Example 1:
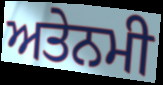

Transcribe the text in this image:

ਅਤੇਨਮੀ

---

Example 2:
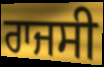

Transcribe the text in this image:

ਰਾਜਸੀ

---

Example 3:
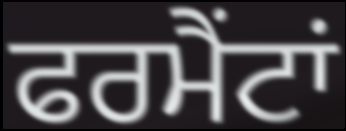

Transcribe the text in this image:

ਫਰਮੈਂਟਾਂ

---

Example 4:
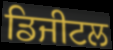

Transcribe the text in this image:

ਡਿਜੀਟਲ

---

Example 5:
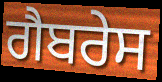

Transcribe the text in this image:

ਗੈਬਰੇਸ